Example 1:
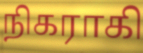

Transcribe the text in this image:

நிகராகி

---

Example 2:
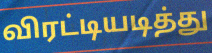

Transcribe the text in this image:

விரட்டியடித்து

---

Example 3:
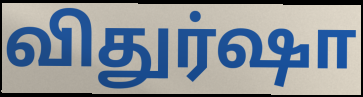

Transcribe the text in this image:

விதுர்ஷா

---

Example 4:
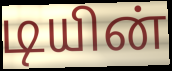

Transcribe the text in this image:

டியின்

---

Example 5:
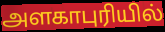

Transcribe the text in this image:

அளகாபுரியில்